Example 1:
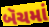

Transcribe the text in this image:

બૅચમાં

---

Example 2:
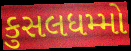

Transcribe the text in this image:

કુસલધમ્મો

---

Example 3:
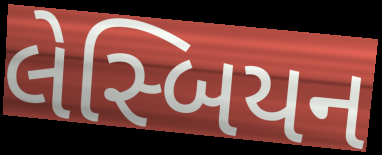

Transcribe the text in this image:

લેસ્બિયન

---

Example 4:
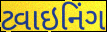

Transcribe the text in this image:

ટ્વાઇનિંગ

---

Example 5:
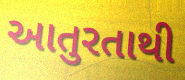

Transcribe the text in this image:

આતુરતાથી